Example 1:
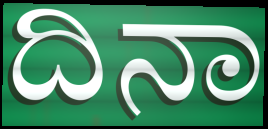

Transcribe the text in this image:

ದಿನಾ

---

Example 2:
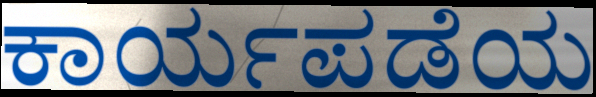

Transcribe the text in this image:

ಕಾರ್ಯಪಡೆಯ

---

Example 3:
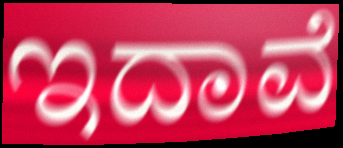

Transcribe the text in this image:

ಇದಾವೆ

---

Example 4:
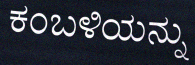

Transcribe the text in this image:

ಕಂಬಳಿಯನ್ನು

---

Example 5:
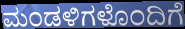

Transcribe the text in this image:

ಮಂಡಳಿಗಳೊಂದಿಗೆ